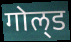
गोल्ड